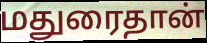
மதுரைதான்